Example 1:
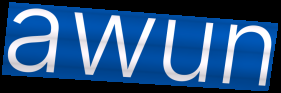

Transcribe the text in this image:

awun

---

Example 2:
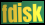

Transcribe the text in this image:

fdisk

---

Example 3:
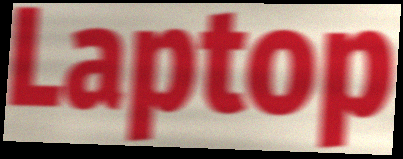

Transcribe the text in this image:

Laptop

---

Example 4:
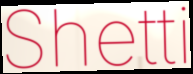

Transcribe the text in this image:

Shetti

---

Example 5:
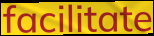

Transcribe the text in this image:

facilitate